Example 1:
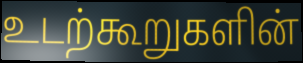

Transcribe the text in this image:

உடற்கூறுகளின்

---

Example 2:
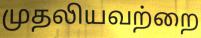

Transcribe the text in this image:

முதலியவற்றை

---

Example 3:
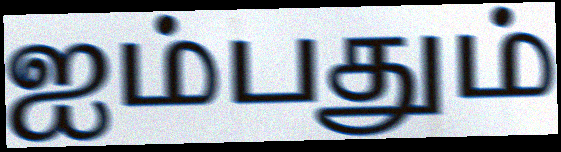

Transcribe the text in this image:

ஐம்பதும்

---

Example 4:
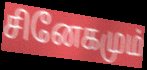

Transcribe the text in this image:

சினேகமும்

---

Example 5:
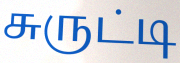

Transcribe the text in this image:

சுருட்டி